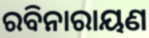
ରବିନାରାୟଣ